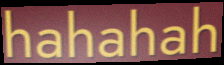
hahahah